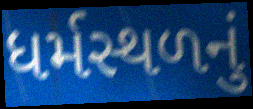
ધર્મસ્થળનું